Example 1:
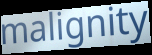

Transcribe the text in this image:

malignity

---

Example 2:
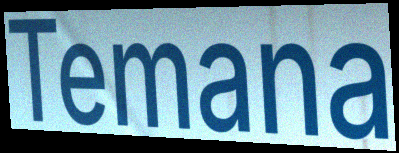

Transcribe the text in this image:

Temana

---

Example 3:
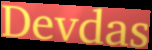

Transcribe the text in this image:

Devdas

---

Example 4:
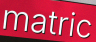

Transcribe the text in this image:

matric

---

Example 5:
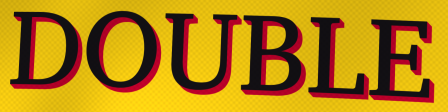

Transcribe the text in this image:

DOUBLE